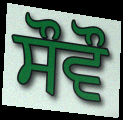
ਸੌਵੌ